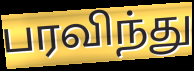
பரவிந்து